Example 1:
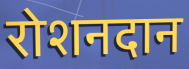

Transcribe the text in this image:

रोशनदान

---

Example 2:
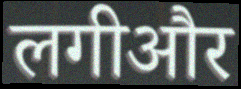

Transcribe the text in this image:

लगीऔर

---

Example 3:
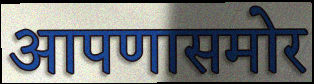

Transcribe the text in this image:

आपणासमोर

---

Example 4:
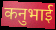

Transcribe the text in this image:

कनुभाई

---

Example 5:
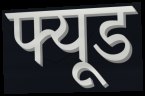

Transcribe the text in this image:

फ्यूड